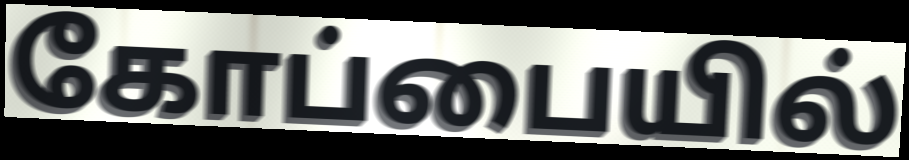
கோப்பையில்